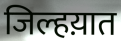
जिल्हय़ात